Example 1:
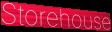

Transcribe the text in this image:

Storehouse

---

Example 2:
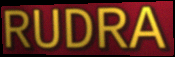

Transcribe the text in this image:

RUDRA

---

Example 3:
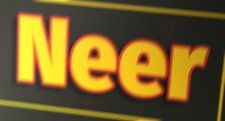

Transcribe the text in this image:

Neer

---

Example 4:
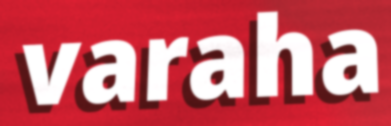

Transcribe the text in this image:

varaha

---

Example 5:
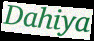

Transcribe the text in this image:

Dahiya